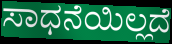
ಸಾಧನೆಯಿಲ್ಲದೆ